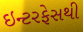
ઇન્ટરફેસથી